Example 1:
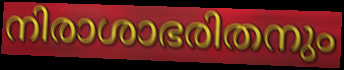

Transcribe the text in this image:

നിരാശാഭരിതനും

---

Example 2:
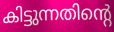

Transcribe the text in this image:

കിട്ടുന്നതിന്റെ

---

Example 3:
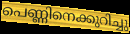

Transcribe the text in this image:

പെണ്ണിനെക്കുറിച്ചു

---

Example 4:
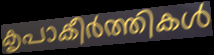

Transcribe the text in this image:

കൃപാകീർത്തികൾ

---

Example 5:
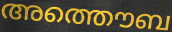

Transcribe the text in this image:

അത്തൌബ